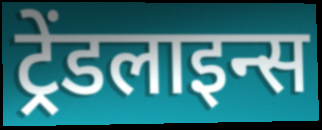
ट्रेंडलाइन्स